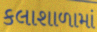
કલાશાળામાં